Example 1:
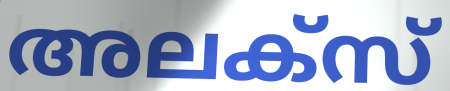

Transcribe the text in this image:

അലക്സ്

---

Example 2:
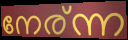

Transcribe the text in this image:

നേര്ന്ന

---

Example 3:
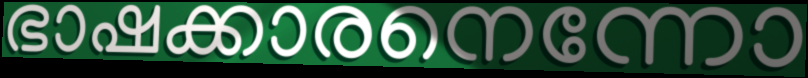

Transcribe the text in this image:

ഭാഷക്കാരനെന്നോ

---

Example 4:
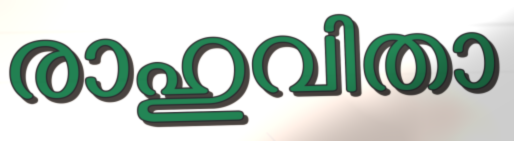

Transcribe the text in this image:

രാഹുവിതാ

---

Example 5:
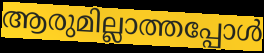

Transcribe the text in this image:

ആരുമില്ലാത്തപ്പോൾ